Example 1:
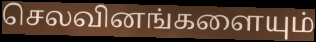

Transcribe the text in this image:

செலவினங்களையும்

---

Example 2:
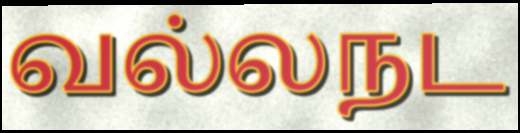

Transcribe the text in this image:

வல்லநட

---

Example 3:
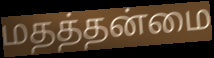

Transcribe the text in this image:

மதத்தன்மை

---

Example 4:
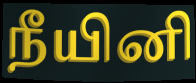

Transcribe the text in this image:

நீயினி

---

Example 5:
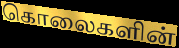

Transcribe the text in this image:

கொலைகளின்